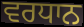
ਵਰਧਾਨ